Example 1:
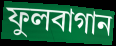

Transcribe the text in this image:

ফুলবাগান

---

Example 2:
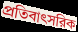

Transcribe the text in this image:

প্রতিবাৎসরিক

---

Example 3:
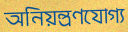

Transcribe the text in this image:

অনিয়ন্ত্রণযোগ্য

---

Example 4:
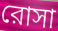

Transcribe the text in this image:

রোসা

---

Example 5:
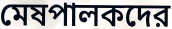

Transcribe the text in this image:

মেষপালকদের